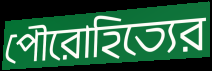
পৌরোহিত্যের